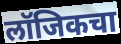
लॉजिकचा